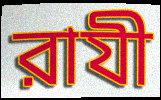
রাযী